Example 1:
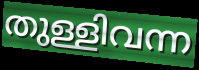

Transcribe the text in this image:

തുള്ളിവന്ന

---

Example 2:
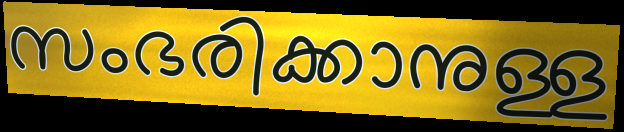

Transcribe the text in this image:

സംഭരിക്കാനുള്ള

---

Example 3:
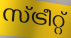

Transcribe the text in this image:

സ്ട്രീറ്റ്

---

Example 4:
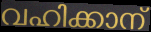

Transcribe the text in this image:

വഹിക്കാന്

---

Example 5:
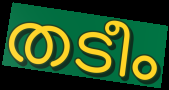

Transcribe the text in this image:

തടീം